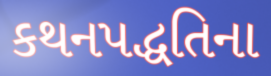
કથનપદ્ધતિના